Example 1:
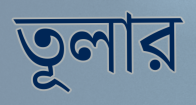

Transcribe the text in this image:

তূলার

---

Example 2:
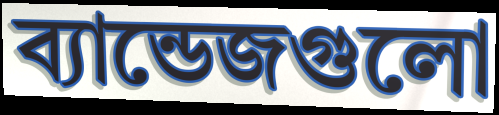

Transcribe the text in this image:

ব্যান্ডেজগুলো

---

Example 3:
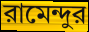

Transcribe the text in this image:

রামেন্দুর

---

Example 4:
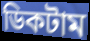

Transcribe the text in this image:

ডিকটাম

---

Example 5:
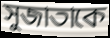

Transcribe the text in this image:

সুজাতাকে